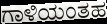
ಗಾಳಿಯಂತಹ